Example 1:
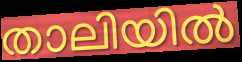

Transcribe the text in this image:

താലിയിൽ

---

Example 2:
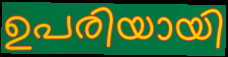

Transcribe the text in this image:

ഉപരിയായി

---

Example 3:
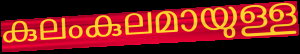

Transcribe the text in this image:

കുലംകുലമായുള്ള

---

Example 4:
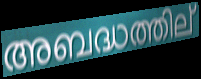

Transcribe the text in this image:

അബദ്ധത്തില്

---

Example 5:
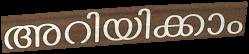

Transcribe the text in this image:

അറിയിക്കാം